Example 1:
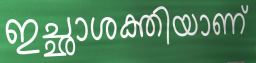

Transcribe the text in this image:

ഇച്ഛാശക്തിയാണ്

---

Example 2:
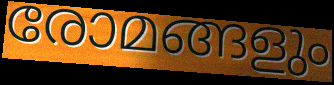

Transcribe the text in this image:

രോമങ്ങളും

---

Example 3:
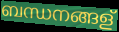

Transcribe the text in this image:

ബന്ധനങ്ങള്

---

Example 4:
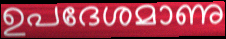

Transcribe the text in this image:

ഉപദേശമാണു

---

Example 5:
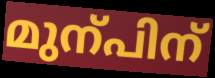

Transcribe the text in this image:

മുന്പിന്